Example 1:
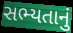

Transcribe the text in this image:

સભ્યતાનું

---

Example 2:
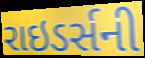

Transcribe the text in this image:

રાઇડર્સની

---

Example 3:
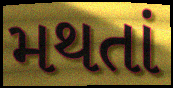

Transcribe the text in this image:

મથતાં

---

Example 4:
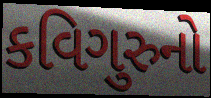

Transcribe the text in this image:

કવિગુરુનો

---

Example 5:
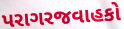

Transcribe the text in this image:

પરાગરજવાહકો